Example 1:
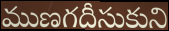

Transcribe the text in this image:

ముణగదీసుకుని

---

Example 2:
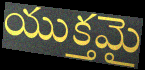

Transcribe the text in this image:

యుక్తమై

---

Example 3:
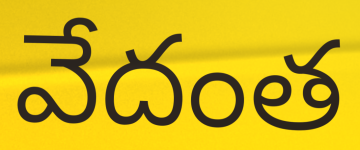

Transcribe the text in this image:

వేదంత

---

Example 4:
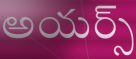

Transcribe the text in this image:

అయర్స్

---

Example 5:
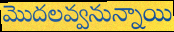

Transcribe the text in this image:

మొదలవ్వనున్నాయి